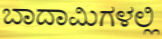
ಬಾದಾಮಿಗಳಲ್ಲಿ